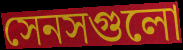
সেনসগুলো